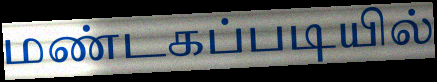
மண்டகப்படியில்